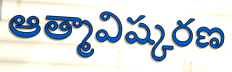
ఆత్మావిష్కరణ